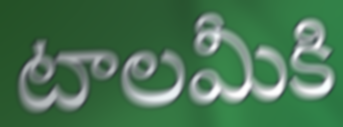
టాలమీకి